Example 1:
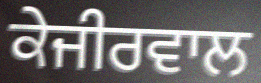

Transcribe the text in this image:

ਕੇਜੀਰਵਾਲ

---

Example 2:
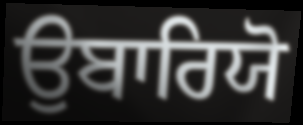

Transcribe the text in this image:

ਉਬਾਰਿਯੋ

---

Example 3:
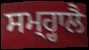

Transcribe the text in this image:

ਸਮ੍ਹ੍ਹਾਲੈ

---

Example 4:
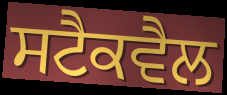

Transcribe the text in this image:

ਸਟੈਕਵੈਲ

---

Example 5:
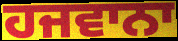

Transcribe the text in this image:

ਹਜਵਾਨਾ